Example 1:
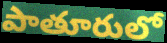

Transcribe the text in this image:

పాతూరులో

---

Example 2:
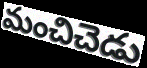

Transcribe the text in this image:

మంచిచెడు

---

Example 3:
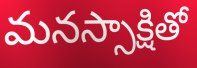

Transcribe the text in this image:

మనస్సాక్షితో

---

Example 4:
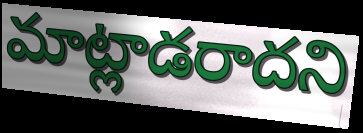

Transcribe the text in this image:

మాట్లాడరాదని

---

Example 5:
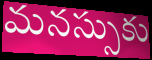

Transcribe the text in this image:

మనస్సుకు